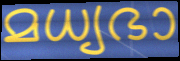
മധ്യഭാ